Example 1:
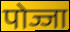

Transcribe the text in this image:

पोज्जा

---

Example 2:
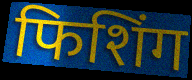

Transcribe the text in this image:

फिशिंग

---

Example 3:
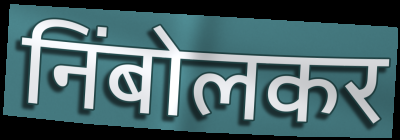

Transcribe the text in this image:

निंबोलकर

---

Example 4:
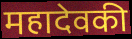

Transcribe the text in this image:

महादेवकी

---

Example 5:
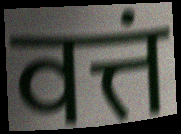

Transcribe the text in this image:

वत्तं